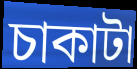
চাকাটা